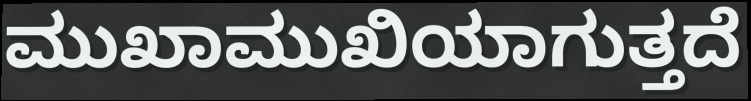
ಮುಖಾಮುಖಿಯಾಗುತ್ತದೆ